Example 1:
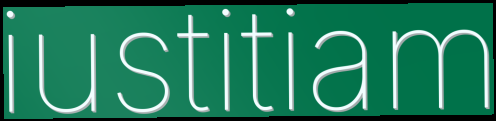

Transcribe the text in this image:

iustitiam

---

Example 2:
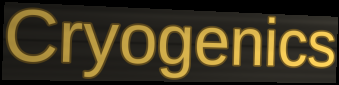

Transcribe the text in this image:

Cryogenics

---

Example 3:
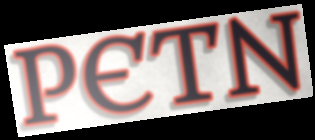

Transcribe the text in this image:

PETN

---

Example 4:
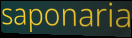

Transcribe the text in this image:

saponaria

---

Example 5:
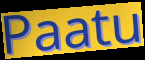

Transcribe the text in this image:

Paatu